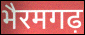
भैरमगढ़